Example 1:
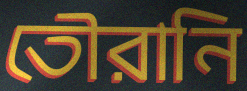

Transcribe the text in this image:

তৌরানি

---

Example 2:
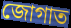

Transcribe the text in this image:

জোগাত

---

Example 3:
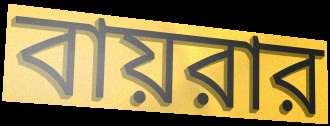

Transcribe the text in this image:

বায়রার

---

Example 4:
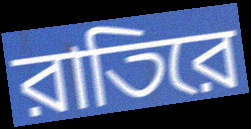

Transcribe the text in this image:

রাতিরে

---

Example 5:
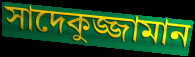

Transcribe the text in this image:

সাদেকুজ্জামান